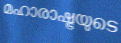
മഹാരാഷ്ട്രയുടെ